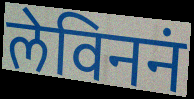
लेविननं